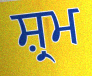
ਸ਼੍ਰਮ